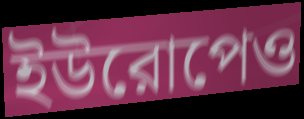
ইউরোপেও